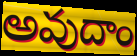
అవుదాం